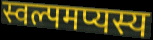
स्वल्पमप्यस्य